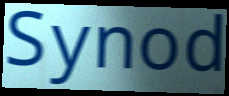
Synod